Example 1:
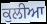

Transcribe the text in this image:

ਕੁਲੀਆ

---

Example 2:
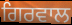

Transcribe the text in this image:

ਗਿਰਵਾਲ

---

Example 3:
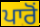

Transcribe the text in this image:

ਪਾਰੋਂ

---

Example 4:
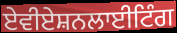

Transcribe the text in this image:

ਏਵੀਏਸ਼ਨਲਾਈਟਿੰਗ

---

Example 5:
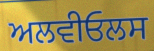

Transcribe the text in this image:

ਅਲਵੀਓਲਸ